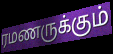
ரமணருக்கும்